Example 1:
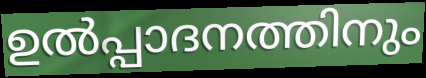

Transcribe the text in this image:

ഉൽപ്പാദനത്തിനും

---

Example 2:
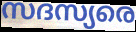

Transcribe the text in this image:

സദസ്യരെ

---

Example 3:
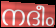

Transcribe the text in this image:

നദീം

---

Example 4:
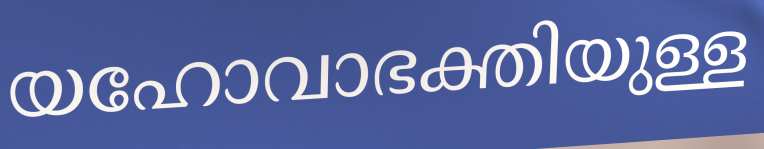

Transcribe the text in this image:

യഹോവാഭക്തിയുള്ള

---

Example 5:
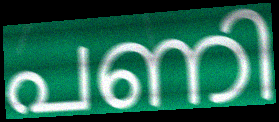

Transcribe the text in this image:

പണി